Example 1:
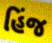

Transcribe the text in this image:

હિંજ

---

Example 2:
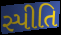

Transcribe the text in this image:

સ્પીતિ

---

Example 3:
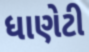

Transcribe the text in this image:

ધાણેટી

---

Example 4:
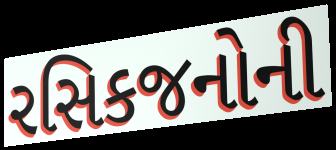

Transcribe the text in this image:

રસિકજનોની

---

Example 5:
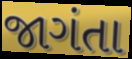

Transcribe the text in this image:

જાગંતા